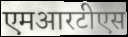
एमआरटीएस